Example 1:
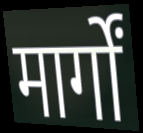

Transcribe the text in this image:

मार्गों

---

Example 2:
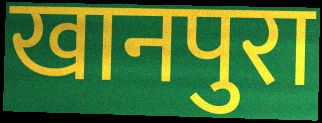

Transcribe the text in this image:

खानपुरा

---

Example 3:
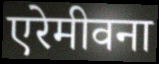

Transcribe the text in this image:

एरेमीवना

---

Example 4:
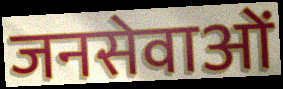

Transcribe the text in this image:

जनसेवाओं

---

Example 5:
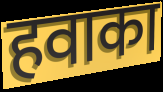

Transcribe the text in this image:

हवाका